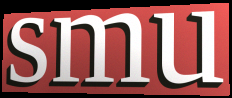
smu